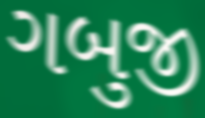
ગબુજી